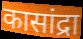
कासांद्रा